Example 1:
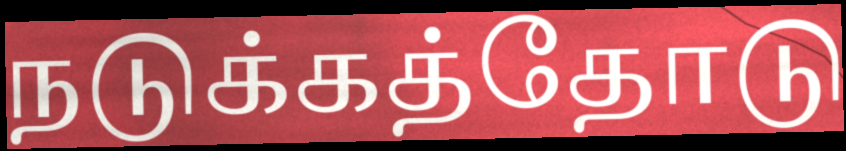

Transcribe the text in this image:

நடுக்கத்தோடு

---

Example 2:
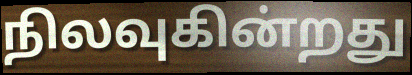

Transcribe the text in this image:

நிலவுகின்றது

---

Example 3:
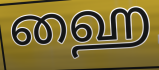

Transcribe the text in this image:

ஹை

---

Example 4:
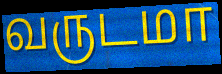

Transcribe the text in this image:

வருடமா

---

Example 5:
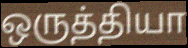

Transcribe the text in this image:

ஒருத்தியா